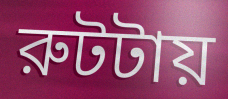
রুটটায়